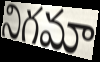
నిగమా